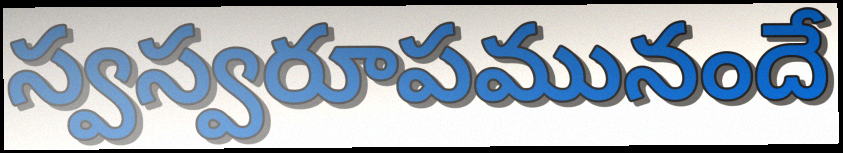
స్వస్వరూపమునందే